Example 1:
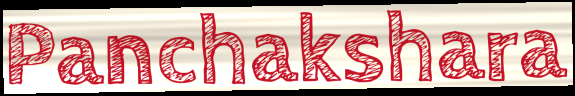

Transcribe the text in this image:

Panchakshara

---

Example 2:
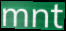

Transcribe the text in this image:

mnt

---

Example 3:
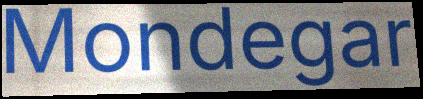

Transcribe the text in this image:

Mondegar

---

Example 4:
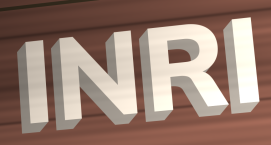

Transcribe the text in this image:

INRI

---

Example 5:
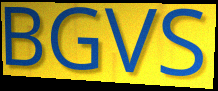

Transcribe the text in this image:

BGVS